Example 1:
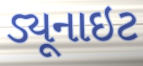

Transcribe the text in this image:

ડ્યૂનાઇટ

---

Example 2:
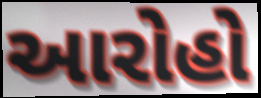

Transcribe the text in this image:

આરોહો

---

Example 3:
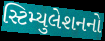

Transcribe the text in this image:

સ્ટિમ્યુલેશનનો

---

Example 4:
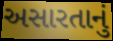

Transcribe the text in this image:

અસારતાનું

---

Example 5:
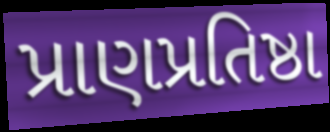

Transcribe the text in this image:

પ્રાણપ્રતિષ્ઠા